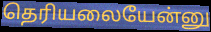
தெரியலையேன்னு